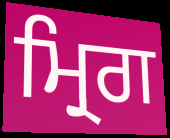
ਮ੍ਰਿਗ